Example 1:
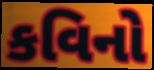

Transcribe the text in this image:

કવિનો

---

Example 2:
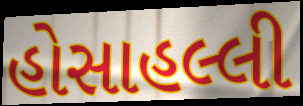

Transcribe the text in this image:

હોસાહલ્લી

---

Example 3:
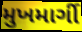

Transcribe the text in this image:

મુખમાર્ગી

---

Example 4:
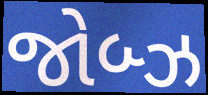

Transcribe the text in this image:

જોબ્ઝ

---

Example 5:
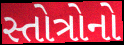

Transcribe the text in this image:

સ્તોત્રોનો